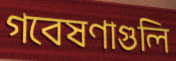
গবেষণাগুলি